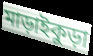
মাড়াইকুড়া